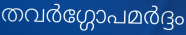
തവർഗ്ഗോപമർദ്ദം